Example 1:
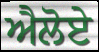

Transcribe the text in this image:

ਐਲੋਏ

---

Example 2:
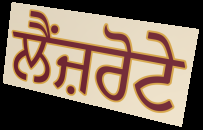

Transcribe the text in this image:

ਲੈਂਜ਼ਰੋਟੇ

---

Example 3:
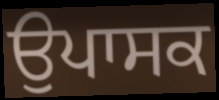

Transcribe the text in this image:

ਉਪਾਸਕ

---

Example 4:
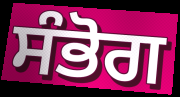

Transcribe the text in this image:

ਸੰਭੋਗ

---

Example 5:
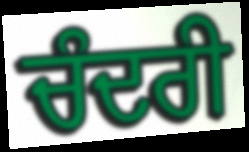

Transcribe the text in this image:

ਚੰਦਰੀ